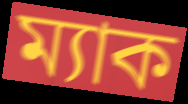
ম্যাক